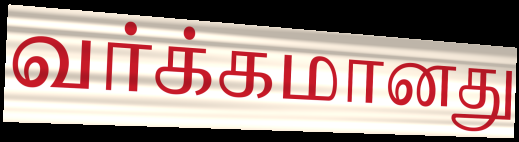
வர்க்கமானது